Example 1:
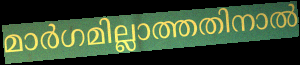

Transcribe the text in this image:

മാർഗമില്ലാത്തതിനാൽ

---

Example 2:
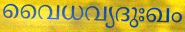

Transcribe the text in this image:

വൈധവ്യദുഃഖം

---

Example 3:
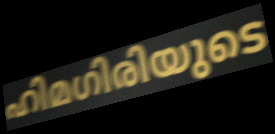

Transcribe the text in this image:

ഹിമഗിരിയുടെ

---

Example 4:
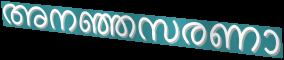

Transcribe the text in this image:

അനഞ്ഞസരണാ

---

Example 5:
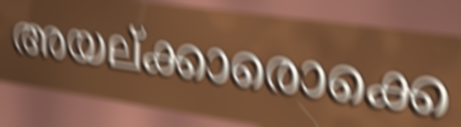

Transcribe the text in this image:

അയല്ക്കാരൊക്കെ